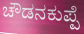
ಚೌಡನಕುಪ್ಪೆ